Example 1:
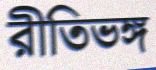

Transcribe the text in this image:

রীতিভঙ্গ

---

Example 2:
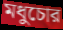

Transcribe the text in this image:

মধুচোর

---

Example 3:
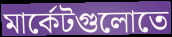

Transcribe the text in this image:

মার্কেটগুলোতে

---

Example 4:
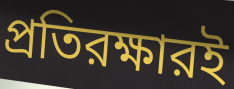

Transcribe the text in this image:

প্রতিরক্ষারই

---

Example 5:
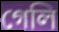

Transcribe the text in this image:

গেলি